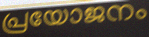
പ്രയോജനം